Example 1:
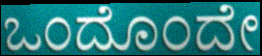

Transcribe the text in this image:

ಒಂದೊಂದೇ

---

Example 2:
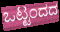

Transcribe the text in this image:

ಒಟ್ಟಂದದ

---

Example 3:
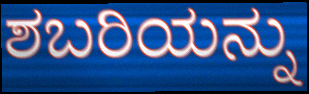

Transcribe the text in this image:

ಶಬರಿಯನ್ನು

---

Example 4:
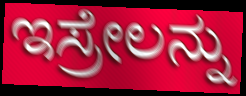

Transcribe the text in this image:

ಇಸ್ರೇಲನ್ನು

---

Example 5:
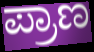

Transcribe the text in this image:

ಪ್ರಾಣ